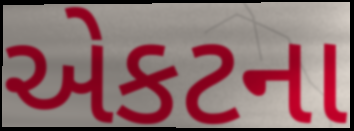
એકટના